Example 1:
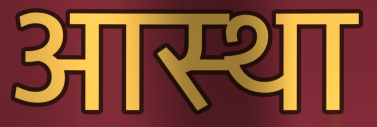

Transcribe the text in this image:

आस्था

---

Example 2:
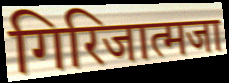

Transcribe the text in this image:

गिरिजात्मजा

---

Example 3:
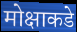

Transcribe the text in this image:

मोक्षाकडे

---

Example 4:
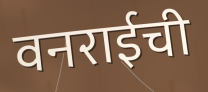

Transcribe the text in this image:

वनराईची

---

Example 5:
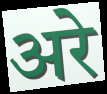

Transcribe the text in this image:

अरे